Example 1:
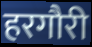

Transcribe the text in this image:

हरगौरी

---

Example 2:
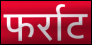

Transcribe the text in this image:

फर्राट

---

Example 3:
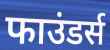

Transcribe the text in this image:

फाउंडर्स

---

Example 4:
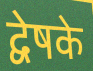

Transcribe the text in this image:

द्वेषके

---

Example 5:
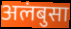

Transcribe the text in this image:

अलंबुसा